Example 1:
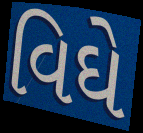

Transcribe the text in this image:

વિઘે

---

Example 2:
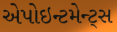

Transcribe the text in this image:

એપોઇન્ટમેન્ટ્સ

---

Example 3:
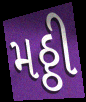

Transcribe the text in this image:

મઠ્ઠી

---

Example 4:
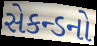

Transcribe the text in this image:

સેકન્ડનો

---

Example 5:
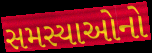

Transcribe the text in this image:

સમસ્યાઓનો